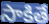
సాకితే